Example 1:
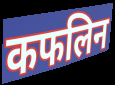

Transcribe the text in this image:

कफलिन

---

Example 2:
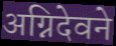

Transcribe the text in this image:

अग्निदेवने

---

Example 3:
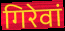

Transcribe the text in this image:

गिरेवां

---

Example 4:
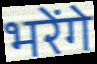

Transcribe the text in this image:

भरेंगे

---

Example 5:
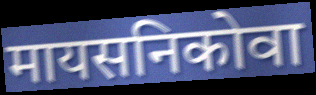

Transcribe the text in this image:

मायसनिकोवा